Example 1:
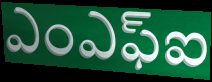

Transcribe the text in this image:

ఎంఎఫ్ఐ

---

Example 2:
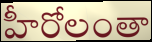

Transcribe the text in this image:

హీరోలంతా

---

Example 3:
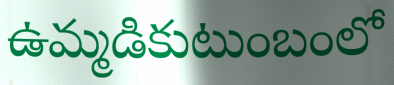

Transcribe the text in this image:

ఉమ్మడికుటుంబంలో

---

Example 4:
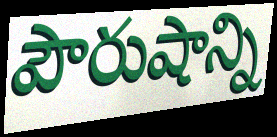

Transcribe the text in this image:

పౌరుషాన్ని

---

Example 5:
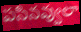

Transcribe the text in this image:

పసినవ్వులా